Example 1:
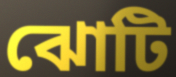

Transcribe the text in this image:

ঝোটি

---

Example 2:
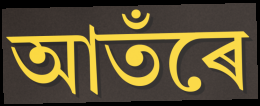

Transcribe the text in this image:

আতঁৰে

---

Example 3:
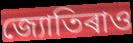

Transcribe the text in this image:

জ্যোতিৰাও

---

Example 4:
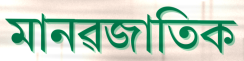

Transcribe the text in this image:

মানৱজাতিক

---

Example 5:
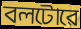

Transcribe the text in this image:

বলটোৱে